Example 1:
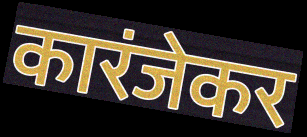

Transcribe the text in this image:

कारंजेकर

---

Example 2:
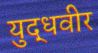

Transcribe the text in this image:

युद्धवीर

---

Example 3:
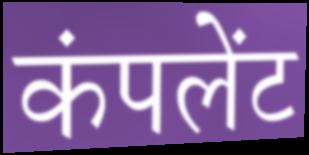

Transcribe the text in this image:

कंपलेंट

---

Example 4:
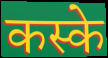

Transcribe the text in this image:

कस्के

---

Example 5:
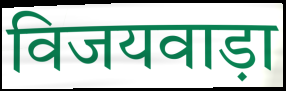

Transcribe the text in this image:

विजयवाड़ा